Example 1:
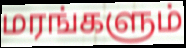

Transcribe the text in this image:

மரங்களும்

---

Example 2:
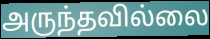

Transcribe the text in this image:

அருந்தவில்லை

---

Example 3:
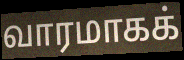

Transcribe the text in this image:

வாரமாகக்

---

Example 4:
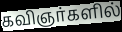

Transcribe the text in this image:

கவிஞர்களில்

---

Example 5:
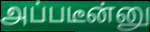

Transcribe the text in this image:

அப்படீன்னு